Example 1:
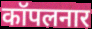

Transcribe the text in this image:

कॉपलनार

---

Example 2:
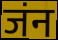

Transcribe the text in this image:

जंन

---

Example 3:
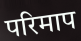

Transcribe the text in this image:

परिमाप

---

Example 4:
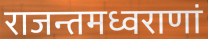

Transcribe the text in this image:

राजन्तमध्वराणां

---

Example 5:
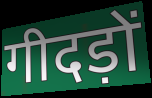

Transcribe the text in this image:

गीदड़ों